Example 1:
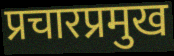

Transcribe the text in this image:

प्रचारप्रमुख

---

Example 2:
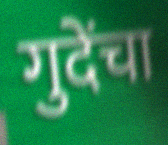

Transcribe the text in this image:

गुदेंचा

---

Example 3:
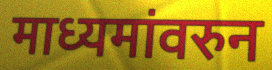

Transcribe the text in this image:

माध्यमांवरुन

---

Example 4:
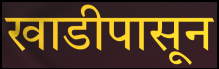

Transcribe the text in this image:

खाडीपासून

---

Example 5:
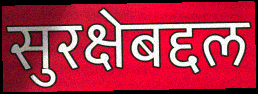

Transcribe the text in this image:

सुरक्षेबद्दल